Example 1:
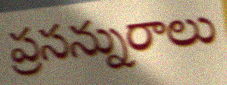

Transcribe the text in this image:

ప్రసన్నురాలు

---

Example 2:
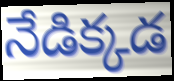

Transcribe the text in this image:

నేడిక్కడ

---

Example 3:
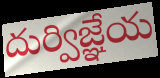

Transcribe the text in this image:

దుర్విజ్ఞేయ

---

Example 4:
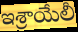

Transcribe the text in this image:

ఇశ్రాయేలీ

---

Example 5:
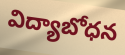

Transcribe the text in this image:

విద్యాబోధన